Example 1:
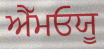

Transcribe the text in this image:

ਐੱਮਓਯੂ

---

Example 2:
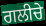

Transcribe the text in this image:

ਗਲੀਚੇ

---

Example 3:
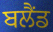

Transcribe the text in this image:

ਬਲੈਂਡ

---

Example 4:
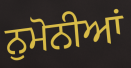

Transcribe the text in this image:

ਨੁਮੋਨੀਆਂ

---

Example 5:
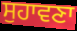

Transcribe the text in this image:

ਸੁਹਾਵਣਾ